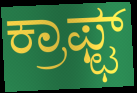
ಕ್ರಾಫ್ಟ್